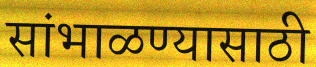
सांभाळण्यासाठी